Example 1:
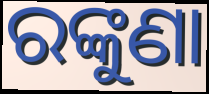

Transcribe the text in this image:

ରଙ୍କୁଣା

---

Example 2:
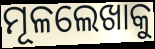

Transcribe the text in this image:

ମୂଳଲେଖାକୁ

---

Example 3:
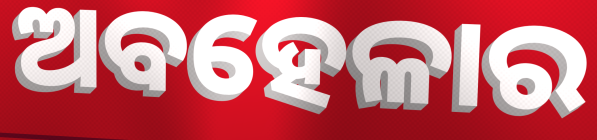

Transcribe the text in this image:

ଅବହେଳାର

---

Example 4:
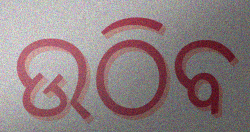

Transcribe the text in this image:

ଉଠିବ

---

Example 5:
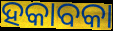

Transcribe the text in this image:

ହକାବକା